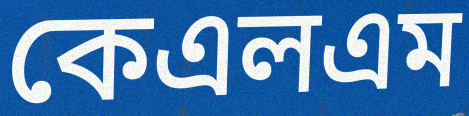
কেএলএম